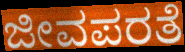
ಜೀವಪರತೆ